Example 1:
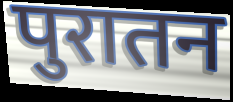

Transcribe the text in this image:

पुरातन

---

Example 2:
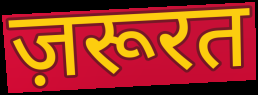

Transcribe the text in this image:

ज़रूरत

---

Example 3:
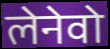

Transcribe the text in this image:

लेनेवो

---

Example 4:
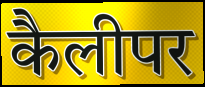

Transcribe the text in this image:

कैलीपर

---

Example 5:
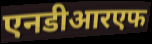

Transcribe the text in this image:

एनडीआरएफ